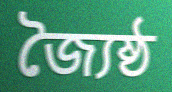
জ্যৈষ্ঠ